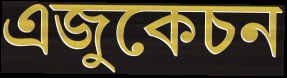
এজুকেচন